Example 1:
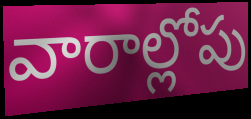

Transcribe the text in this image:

వారాల్లోపు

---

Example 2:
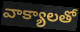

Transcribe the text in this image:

వాక్యాలతో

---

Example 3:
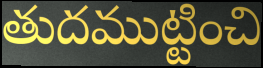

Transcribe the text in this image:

తుదముట్టించి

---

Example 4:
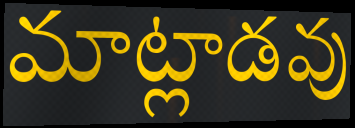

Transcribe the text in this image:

మాట్లాడవు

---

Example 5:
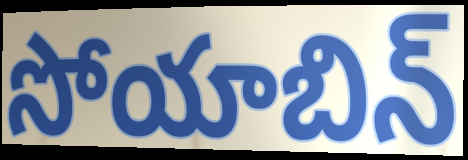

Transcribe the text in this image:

సోయాబిన్